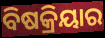
ବିଷକ୍ରିୟାର